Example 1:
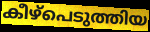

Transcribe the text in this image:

കീഴ്പെടുത്തിയ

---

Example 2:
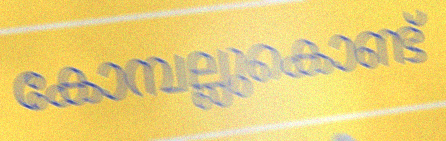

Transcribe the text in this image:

കോമ്പല്ലുകൊണ്ട്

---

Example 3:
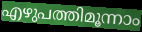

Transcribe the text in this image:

എഴുപത്തിമൂന്നാം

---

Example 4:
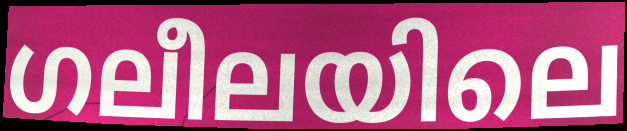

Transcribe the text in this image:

ഗലീലയിലെ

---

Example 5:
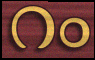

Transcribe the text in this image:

റം